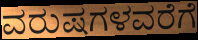
ವರುಷಗಳವರೆಗೆ